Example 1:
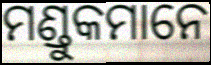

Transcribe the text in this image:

ମଣ୍ଡୁକମାନେ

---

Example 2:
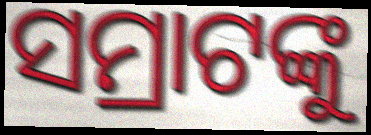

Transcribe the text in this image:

ସମ୍ରାଟଙ୍କୁ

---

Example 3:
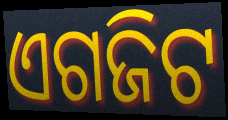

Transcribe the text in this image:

ଏଗଜିଟ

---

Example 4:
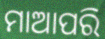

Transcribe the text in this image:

ମାଆପରି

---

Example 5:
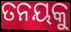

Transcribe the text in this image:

ତନୟକୁ